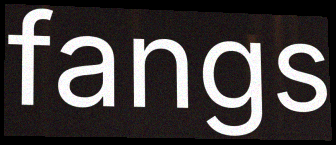
fangs